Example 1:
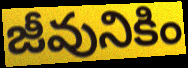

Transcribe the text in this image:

జీవునికిం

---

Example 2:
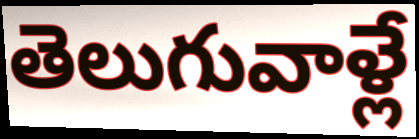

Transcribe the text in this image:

తెలుగువాళ్లే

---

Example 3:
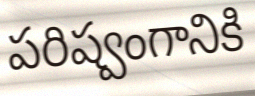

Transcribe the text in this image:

పరిష్వంగానికి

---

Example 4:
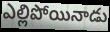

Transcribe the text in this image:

ఎల్లిపోయినాడు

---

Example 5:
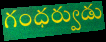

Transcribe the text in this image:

గంధర్వుడు